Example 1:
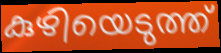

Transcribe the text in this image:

കുഴിയെടുത്ത്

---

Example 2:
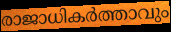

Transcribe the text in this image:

രാജാധികർത്താവും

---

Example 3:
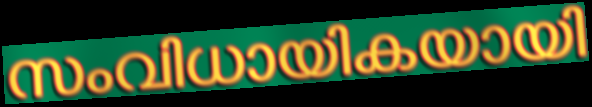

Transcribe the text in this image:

സംവിധായികയായി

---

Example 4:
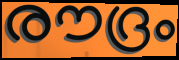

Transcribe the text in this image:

രൗദ്രം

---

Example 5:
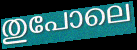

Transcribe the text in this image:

തുപോലെ